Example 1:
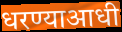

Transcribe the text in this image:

धरण्याआधी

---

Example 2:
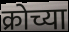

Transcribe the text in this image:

क्रोच्या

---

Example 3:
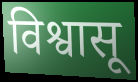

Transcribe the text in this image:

विश्वासू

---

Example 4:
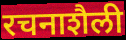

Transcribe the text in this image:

रचनाशैली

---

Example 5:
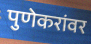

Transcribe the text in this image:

पुणेकरांवर